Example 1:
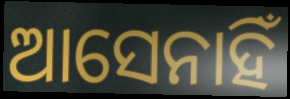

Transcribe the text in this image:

ଆସେନାହିଁ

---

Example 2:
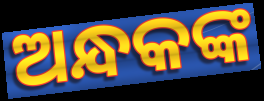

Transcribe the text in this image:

ଅନ୍ଧକଙ୍କ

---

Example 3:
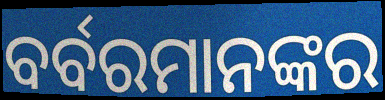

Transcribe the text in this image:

ବର୍ବରମାନଙ୍କର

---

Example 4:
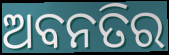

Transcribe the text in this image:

ଅବନତିର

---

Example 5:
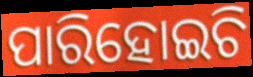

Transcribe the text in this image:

ପାରିହୋଇଚି